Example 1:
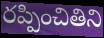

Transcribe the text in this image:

రప్పించితిని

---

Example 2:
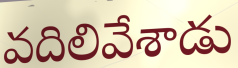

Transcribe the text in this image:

వదిలివేశాడు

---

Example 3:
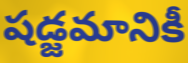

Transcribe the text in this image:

షడ్జమానికీ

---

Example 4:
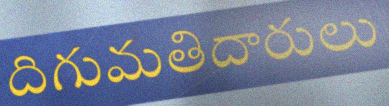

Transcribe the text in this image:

దిగుమతిదారులు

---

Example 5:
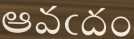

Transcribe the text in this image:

ఆవఁదం